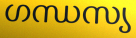
ഗന്ധസ്യ